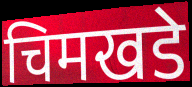
चिमखडे